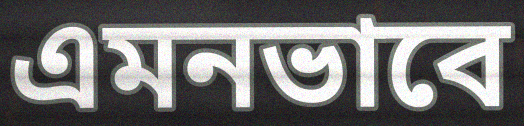
এমনভাবে